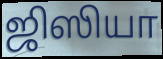
ஜிஸியா